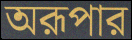
অরূপার